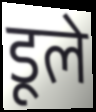
डूले